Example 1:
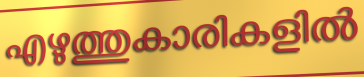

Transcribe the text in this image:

എഴുത്തുകാരികളിൽ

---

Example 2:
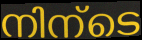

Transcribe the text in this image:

നിന്ടെ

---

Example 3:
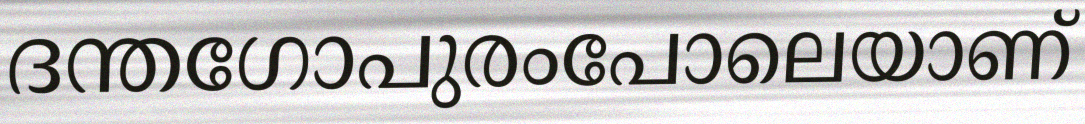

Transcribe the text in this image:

ദന്തഗോപുരംപോലെയാണ്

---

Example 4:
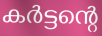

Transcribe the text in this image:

കർട്ടന്റെ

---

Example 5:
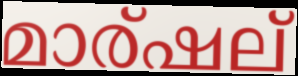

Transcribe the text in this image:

മാര്ഷല്